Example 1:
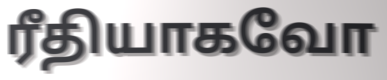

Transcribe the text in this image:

ரீதியாகவோ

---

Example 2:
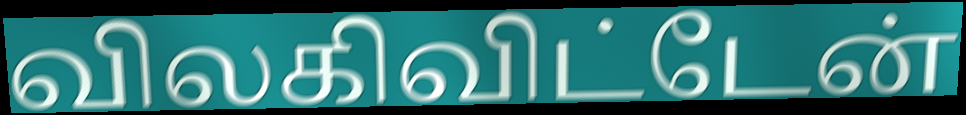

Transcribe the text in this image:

விலகிவிட்டேன்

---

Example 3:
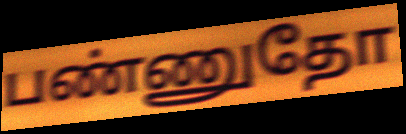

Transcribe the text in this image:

பண்ணுதோ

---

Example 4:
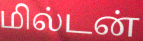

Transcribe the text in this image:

மில்டன்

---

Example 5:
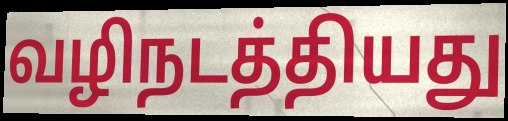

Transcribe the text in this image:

வழிநடத்தியது